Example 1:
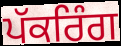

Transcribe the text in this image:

ਪੱਕਰਿੰਗ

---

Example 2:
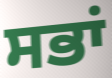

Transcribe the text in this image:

ਸਭਾਂ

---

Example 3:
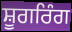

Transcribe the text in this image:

ਸ਼ੂਗਰਿੰਗ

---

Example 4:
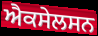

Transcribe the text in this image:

ਐਕਸੇਲਸਨ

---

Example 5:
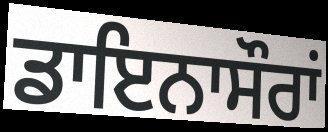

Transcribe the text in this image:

ਡਾਇਨਾਸੌਰਾਂ